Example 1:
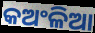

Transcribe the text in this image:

କଅଂଳିଆ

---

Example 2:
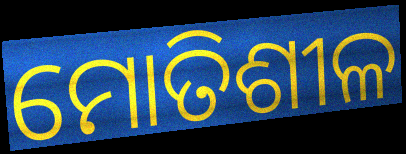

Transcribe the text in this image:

ମୋତିଶୀଳ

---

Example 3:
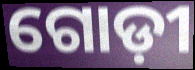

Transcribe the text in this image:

ଗୋଡ଼ୀ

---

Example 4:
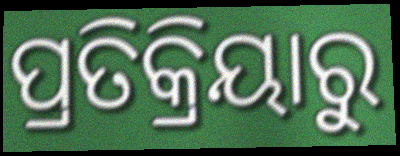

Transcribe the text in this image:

ପ୍ରତିକ୍ରିୟାରୁ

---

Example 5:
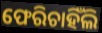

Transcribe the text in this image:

ଫେରିଚାହିଁଲି